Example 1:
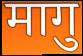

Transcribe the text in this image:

मागु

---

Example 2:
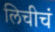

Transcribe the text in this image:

लिचीचं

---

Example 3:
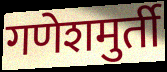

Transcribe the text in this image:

गणेशमुर्ती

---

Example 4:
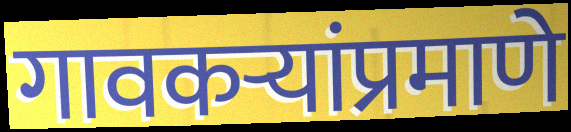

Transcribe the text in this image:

गावकऱ्यांप्रमाणे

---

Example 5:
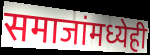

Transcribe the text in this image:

समाजांमध्येही